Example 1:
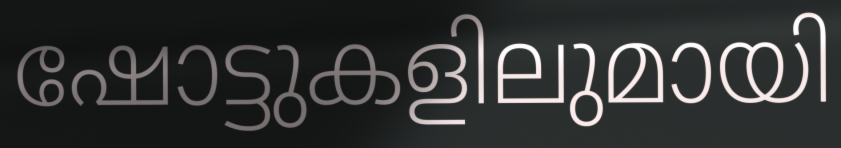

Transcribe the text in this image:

ഷോട്ടുകളിലുമായി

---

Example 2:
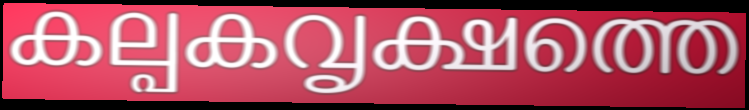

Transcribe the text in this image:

കല്പകവൃക്ഷത്തെ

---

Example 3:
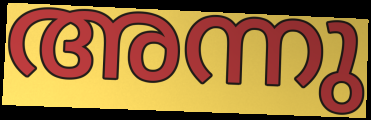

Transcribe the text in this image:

അന്നു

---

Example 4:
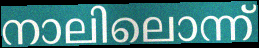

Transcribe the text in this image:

നാലിലൊന്ന്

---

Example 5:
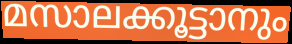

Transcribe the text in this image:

മസാലക്കൂട്ടാനും